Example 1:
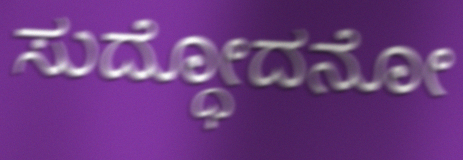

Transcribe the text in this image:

ಸುದ್ಧೋದನೋ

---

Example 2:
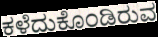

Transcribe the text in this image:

ಕಳೆದುಕೊಂಡಿರುವ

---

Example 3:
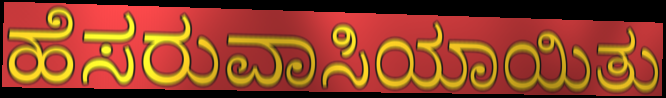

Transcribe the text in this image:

ಹೆಸರುವಾಸಿಯಾಯಿತು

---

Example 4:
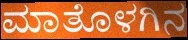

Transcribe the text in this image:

ಮಾತೊಳಗಿನ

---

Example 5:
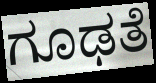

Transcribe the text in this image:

ಗೂಢತೆ